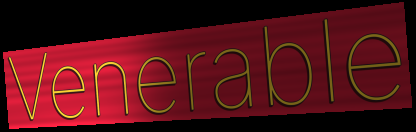
Venerable